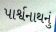
પાર્શ્વનાથનું